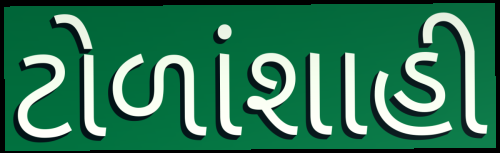
ટોળાંશાહી